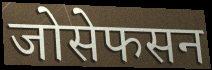
जोसेफसन